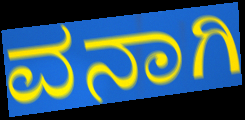
ವನಾಗಿ